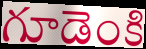
గూడెంకి